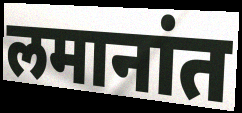
लमानांत